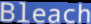
Bleach